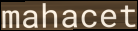
mahacet